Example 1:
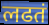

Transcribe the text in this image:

लढतं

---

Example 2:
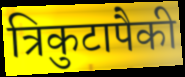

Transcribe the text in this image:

त्रिकुटापैकी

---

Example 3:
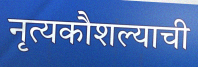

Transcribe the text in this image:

नृत्यकौशल्याची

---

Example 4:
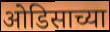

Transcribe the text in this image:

ओडिसाच्या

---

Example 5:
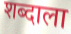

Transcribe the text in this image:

शब्दाला